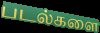
படல்களை